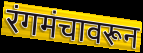
रंगमंचावरून